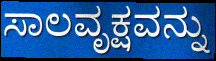
ಸಾಲವೃಕ್ಷವನ್ನು